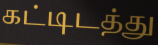
கட்டிடத்து